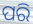
ପରି